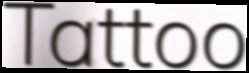
Tattoo